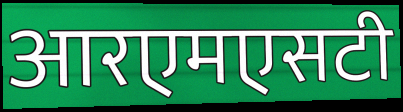
आरएमएसटी